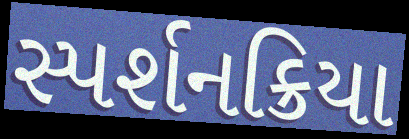
સ્પર્શનક્રિયા